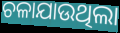
ଚଳାଯାଉଥିଲା